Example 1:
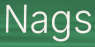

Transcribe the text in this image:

Nags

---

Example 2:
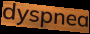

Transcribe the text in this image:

dyspnea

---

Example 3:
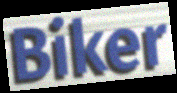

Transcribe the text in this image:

Biker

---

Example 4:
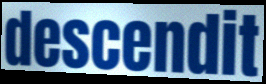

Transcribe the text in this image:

descendit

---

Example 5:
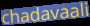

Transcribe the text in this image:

chadavaali